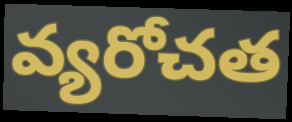
వ్యరోచత